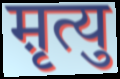
म़ृत्यु